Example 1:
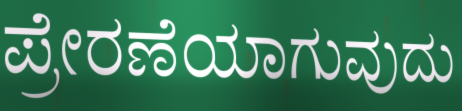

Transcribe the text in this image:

ಪ್ರೇರಣೆಯಾಗುವುದು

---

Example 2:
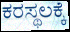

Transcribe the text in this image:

ಕರಸ್ಥಲಕ್ಕೆ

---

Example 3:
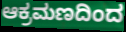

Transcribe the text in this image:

ಆಕ್ರಮಣದಿಂದ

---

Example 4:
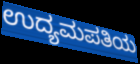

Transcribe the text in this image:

ಉದ್ಯಮಪತಿಯ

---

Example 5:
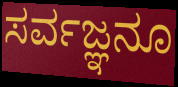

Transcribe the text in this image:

ಸರ್ವಜ್ಞನೂ